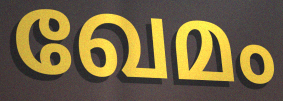
ഖേമം